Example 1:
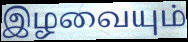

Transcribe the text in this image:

இழவையும்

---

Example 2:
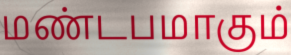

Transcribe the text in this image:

மண்டபமாகும்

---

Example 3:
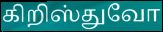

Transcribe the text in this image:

கிறிஸ்துவோ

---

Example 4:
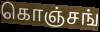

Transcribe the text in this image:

கொஞ்சங்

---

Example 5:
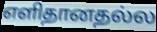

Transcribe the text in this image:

எளிதானதல்ல